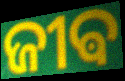
ଜୀଵ